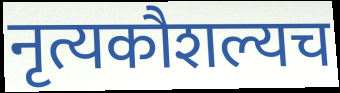
नृत्यकौशल्यच